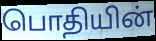
பொதியின்